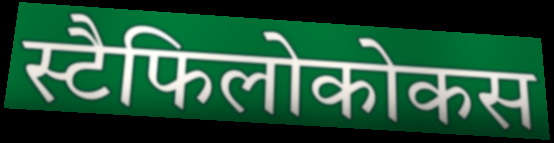
स्टैफिलोकोकस